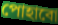
পোহাবো